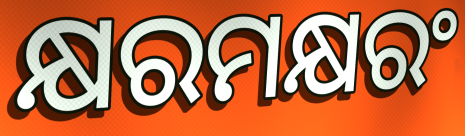
କ୍ଷରମକ୍ଷରଂ